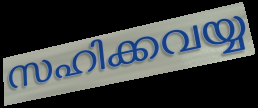
സഹിക്കവയ്യ